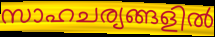
സാഹചര്യങ്ങളിൽ